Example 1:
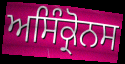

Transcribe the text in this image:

ਅਸਿੰਕ੍ਰੋਨਸ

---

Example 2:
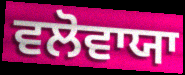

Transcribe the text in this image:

ਵਲੋਵਾਯਾ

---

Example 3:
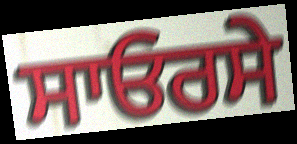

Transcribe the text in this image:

ਸਾਓਰਸੇ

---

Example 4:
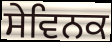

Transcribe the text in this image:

ਸੇਵਿਨਕ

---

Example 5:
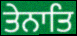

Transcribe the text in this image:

ਤੇਨਾਤਿ